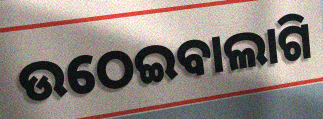
ଉଠେଇବାଲାଗି